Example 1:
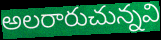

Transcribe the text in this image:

అలరారుచున్నవి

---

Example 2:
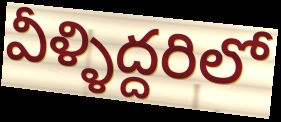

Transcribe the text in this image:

వీళ్ళిద్దరిలో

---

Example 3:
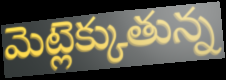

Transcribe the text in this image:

మెట్లెక్కుతున్న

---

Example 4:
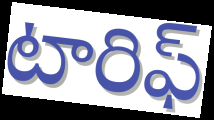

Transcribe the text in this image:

టారిఫ్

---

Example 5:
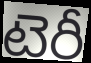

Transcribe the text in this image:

టెరీ